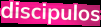
discipulos